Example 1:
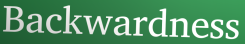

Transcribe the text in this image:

Backwardness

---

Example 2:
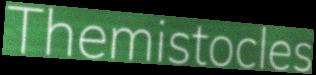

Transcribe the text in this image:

Themistocles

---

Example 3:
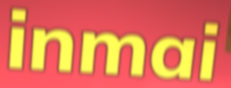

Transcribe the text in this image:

inmai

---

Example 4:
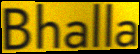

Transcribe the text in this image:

Bhalla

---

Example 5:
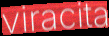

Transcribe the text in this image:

viracita